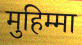
मुहिम्मा